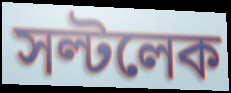
সল্টলেক